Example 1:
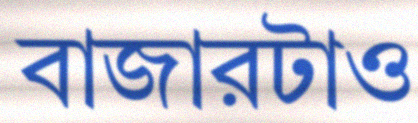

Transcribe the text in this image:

বাজারটাও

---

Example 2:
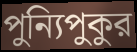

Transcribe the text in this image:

পুন্যিপুকুর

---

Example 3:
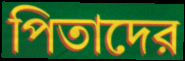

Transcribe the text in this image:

পিতাদের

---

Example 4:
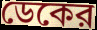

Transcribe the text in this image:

ডেকের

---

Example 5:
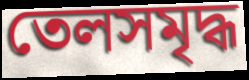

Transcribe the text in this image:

তেলসমৃদ্ধ